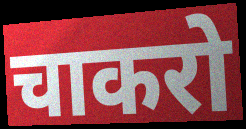
चाकरो